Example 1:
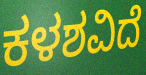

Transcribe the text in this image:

ಕಳಶವಿದೆ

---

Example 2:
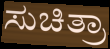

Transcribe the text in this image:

ಸುಚಿತ್ರಾ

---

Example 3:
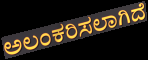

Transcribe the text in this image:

ಅಲಂಕರಿಸಲಾಗಿದೆ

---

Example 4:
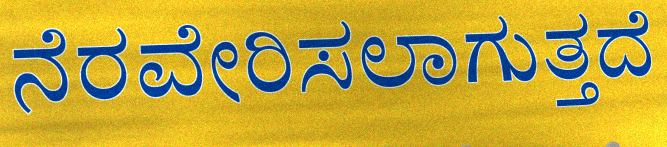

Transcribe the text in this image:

ನೆರವೇರಿಸಲಾಗುತ್ತದೆ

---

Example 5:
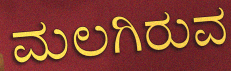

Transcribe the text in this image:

ಮಲಗಿರುವ